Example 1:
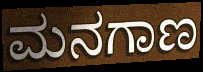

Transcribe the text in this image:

ಮನಗಾಣ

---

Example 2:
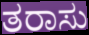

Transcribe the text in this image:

ತರಾಸು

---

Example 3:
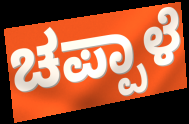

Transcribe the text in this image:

ಚಪ್ಪಾಳೆ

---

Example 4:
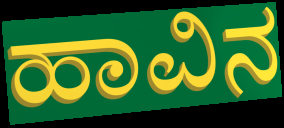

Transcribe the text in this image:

ಹಾವಿನ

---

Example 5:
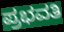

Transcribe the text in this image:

ಪ್ರಭವತಿ